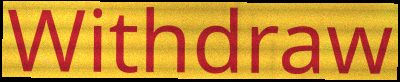
Withdraw